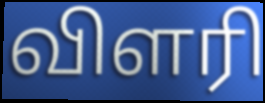
விளரி